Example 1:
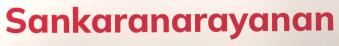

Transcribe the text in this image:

Sankaranarayanan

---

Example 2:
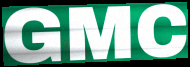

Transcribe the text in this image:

GMC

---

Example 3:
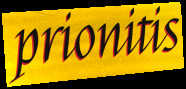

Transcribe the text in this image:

prionitis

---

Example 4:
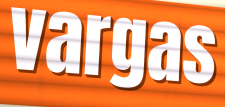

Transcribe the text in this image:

vargas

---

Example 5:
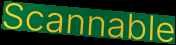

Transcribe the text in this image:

Scannable